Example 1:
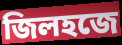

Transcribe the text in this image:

জিলহজে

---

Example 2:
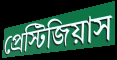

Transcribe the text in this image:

প্রেস্টিজিয়াস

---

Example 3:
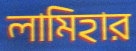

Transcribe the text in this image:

লামিহার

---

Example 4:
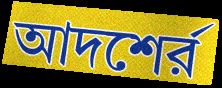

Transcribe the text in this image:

আদশের্র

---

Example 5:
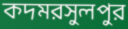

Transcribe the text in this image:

কদমরসুলপুর